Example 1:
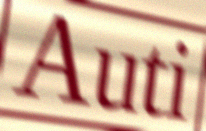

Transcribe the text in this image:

Auti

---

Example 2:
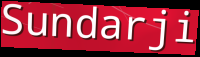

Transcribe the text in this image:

Sundarji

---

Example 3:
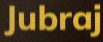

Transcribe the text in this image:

Jubraj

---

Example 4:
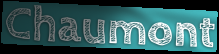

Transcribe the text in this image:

Chaumont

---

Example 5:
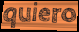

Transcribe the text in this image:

quiero